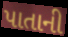
પાતાની